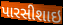
પારસીશાઇ